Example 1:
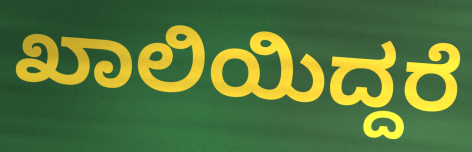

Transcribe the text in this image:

ಖಾಲಿಯಿದ್ದರೆ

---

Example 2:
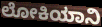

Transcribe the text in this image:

ಲೋಕಿಯಾನಿ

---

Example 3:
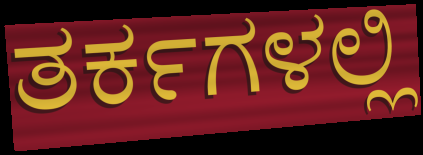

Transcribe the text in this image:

ತರ್ಕಗಳಲ್ಲಿ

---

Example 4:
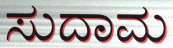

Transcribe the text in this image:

ಸುದಾಮ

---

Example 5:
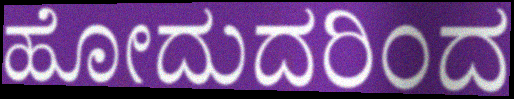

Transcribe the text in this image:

ಹೋದುದರಿಂದ